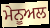
ਮੇਨੂਅਲ